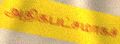
அதிகபட்சமாகச்